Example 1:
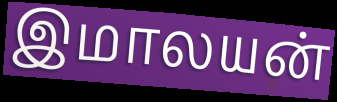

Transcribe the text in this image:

இமாலயன்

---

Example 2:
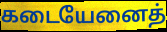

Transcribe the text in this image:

கடையேனைத்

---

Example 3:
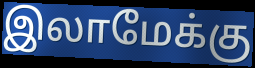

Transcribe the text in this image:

இலாமேக்கு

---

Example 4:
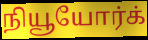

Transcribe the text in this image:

நியூயோர்க்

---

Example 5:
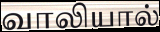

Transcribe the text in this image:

வாலியால்